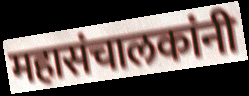
महासंचालकांनी